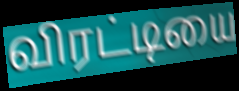
விரட்டியை